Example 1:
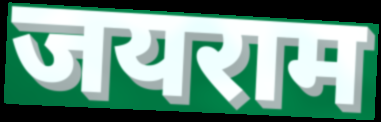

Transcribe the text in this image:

जयराम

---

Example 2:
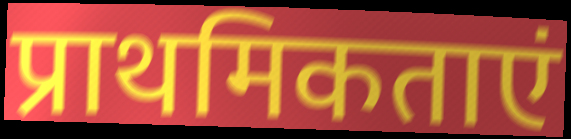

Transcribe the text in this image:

प्राथमिकताएं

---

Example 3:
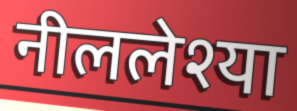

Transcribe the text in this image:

नीललेश्या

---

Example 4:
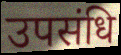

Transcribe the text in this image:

उपसंधि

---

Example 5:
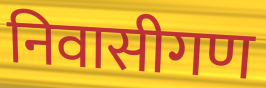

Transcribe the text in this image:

निवासीगण